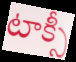
టాక్సీ